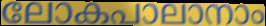
ലോകപാലാനാം